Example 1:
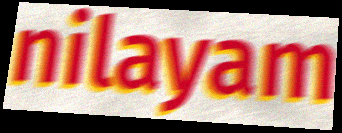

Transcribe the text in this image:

nilayam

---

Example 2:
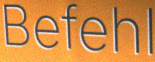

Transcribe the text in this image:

Befehl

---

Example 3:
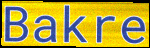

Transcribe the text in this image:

Bakre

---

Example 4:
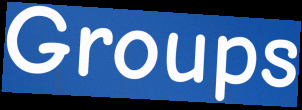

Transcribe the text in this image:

Groups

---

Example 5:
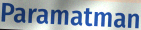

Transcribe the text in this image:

Paramatman